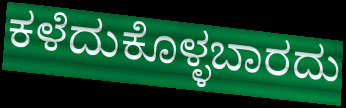
ಕಳೆದುಕೊಳ್ಳಬಾರದು